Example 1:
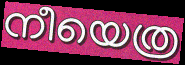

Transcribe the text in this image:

നീയെത്ര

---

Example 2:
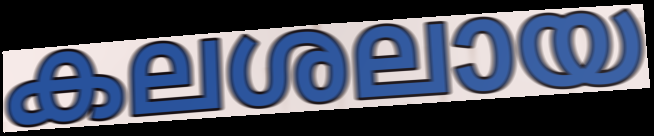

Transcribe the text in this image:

കലശലായ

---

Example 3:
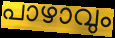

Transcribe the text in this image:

പാഴാവും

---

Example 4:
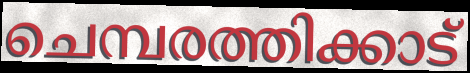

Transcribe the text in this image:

ചെമ്പരത്തിക്കാട്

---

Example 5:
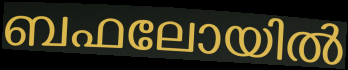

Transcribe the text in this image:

ബഫലോയിൽ